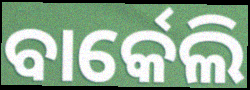
ବାର୍କେଲି